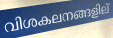
വിശകലനങ്ങളില്